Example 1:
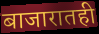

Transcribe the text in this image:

बाजारातही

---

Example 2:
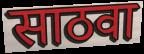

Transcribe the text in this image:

साठवा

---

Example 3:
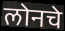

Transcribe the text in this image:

लोनचे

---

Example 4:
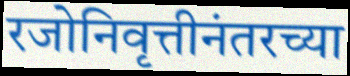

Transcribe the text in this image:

रजोनिवृत्तीनंतरच्या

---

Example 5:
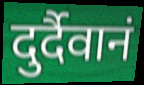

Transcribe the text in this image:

दुर्दैवानं